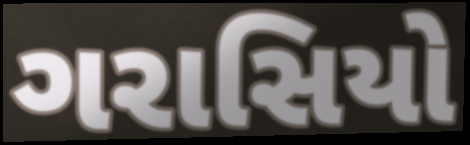
ગરાસિયો